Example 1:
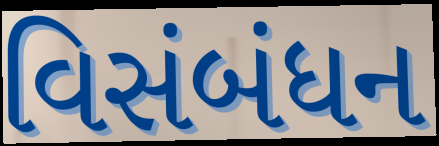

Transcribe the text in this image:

વિસંબંધન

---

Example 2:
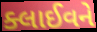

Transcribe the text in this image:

ક્લાઈવને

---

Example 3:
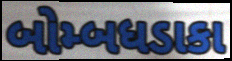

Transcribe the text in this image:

બોમ્બધડાકા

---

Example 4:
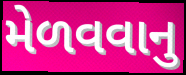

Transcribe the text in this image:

મેળવવાનુ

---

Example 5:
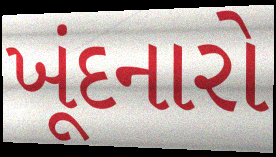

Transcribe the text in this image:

ખૂંદનારો